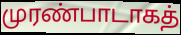
முரண்பாடாகத்